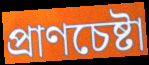
প্রাণচেষ্টা